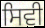
ਸਿਵੀ